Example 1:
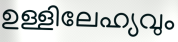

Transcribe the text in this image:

ഉള്ളിലേഹ്യവും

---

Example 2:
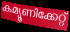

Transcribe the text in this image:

കമ്യൂണിക്കേറ്റ്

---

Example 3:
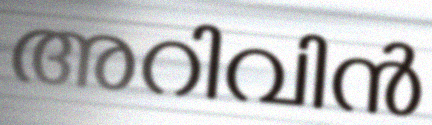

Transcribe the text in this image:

അറിവിൻ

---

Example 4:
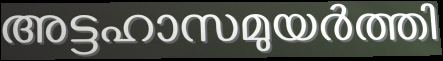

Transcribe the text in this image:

അട്ടഹാസമുയർത്തി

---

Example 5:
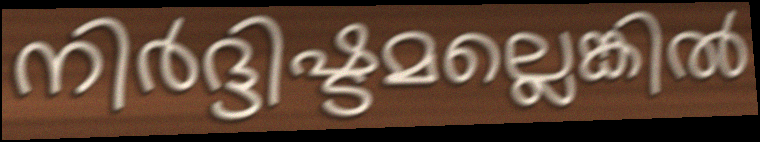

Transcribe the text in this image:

നിർദ്ദിഷ്ടമല്ലെങ്കിൽ